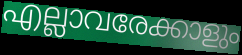
എല്ലാവരേക്കാളും